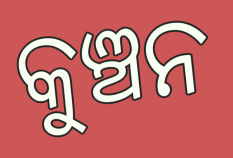
କୁଞ୍ଚନ